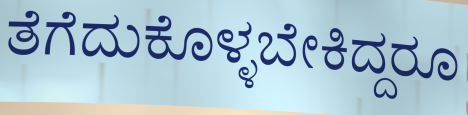
ತೆಗೆದುಕೊಳ್ಳಬೇಕಿದ್ದರೂ